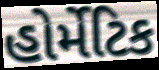
હોર્મેટિક